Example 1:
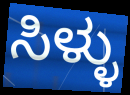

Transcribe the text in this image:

ಸಿಳ್ಳು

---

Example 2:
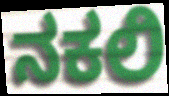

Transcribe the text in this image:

ನಕಲಿ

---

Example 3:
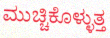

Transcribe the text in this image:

ಮುಚ್ಚಿಕೊಳ್ಳುತ್ತ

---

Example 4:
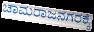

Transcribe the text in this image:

ಚಾಮರಾಜನಗರಕ್ಕೆ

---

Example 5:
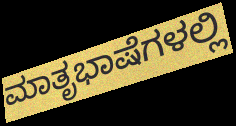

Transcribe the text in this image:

ಮಾತೃಭಾಷೆಗಳಲ್ಲಿ